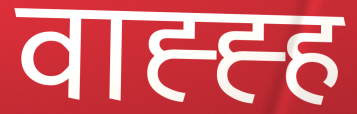
वाह्ह्ह